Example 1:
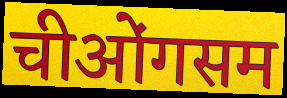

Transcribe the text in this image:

चीओंगसम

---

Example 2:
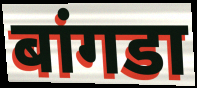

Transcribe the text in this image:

बांगडा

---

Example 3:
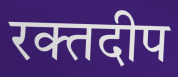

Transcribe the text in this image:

रक्तदीप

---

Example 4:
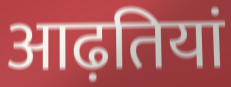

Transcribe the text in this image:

आढ़तियां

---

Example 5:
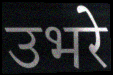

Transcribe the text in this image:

उभरे